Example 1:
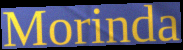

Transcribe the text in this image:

Morinda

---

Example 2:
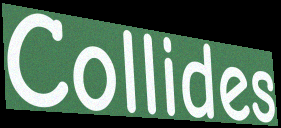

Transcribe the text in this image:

Collides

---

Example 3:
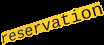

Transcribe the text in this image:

reservation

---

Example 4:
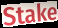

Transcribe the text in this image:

Stake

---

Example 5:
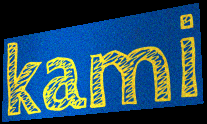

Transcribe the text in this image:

kami